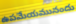
ఉపమేయమునందు